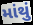
માંથું